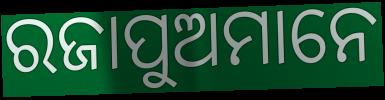
ରଜାପୁଅମାନେ